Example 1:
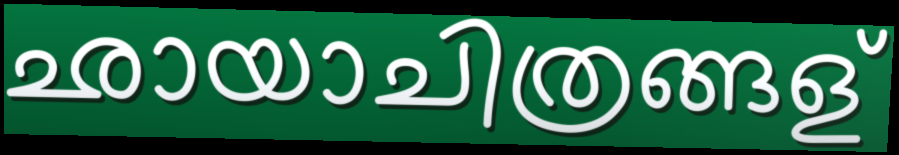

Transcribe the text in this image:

ഛായാചിത്രങ്ങള്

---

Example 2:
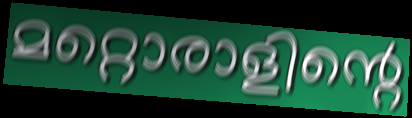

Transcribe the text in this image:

മറ്റൊരാളിന്റെ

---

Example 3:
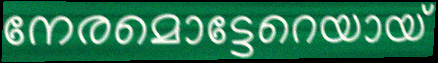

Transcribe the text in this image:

നേരമൊട്ടേറെയായ്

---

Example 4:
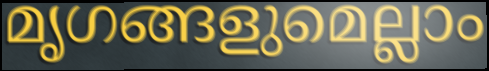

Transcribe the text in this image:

മൃഗങ്ങളുമെല്ലാം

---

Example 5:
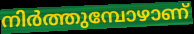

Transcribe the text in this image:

നിർത്തുമ്പോഴാണ്